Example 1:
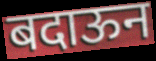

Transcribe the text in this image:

बदाऊन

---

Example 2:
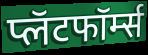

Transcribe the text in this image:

प्लॅटफॉर्म्स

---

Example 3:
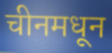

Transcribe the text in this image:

चीनमधून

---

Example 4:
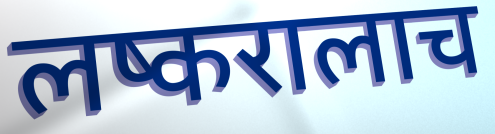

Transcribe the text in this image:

लष्करालाच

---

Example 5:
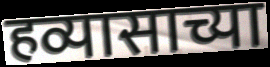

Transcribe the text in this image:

हव्यासाच्या